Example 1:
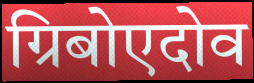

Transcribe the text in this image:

ग्रिबोएदोव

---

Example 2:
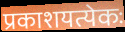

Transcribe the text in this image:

प्रकाशयत्येकः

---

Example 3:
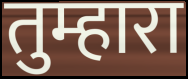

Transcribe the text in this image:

तुम्‍हारा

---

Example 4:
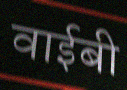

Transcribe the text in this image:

वाईबी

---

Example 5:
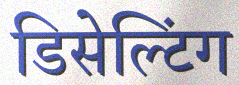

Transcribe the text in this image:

डिसेल्टिंग